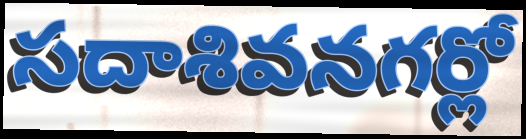
సదాశివనగర్లో